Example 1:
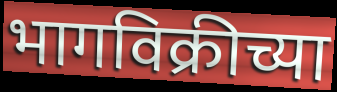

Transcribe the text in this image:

भागविक्रीच्या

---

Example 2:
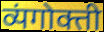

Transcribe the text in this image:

व्यंगोक्ती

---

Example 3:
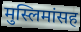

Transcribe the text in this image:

मुस्लिमांसह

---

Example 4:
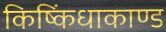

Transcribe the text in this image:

किष्किंधाकाण्ड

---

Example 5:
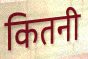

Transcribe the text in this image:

कितनी